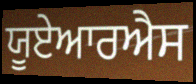
ਯੂਏਆਰਐਸ